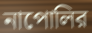
নাপোলির